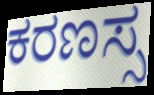
ಕರಣಸ್ಸ